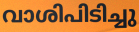
വാശിപിടിച്ചു